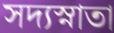
সদ্যস্নাতা